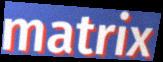
matrix